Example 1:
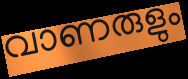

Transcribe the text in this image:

വാണരുളും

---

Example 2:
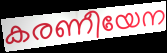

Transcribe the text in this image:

കരണീയേന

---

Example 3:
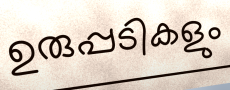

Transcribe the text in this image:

ഉരുപ്പടികളും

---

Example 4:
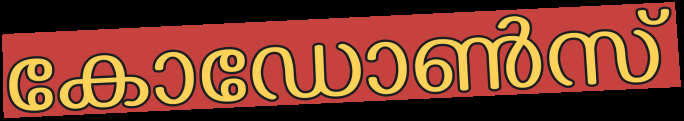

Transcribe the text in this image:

കോഡോൺസ്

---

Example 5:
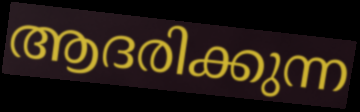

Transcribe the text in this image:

ആദരിക്കുന്ന